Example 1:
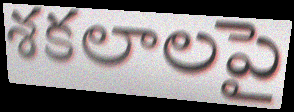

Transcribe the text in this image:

శకలాలపై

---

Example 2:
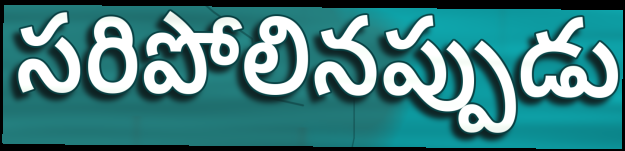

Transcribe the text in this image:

సరిపోలినప్పుడు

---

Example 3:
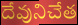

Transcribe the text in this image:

దేవునిచేత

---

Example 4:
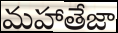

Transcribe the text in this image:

మహాతేజా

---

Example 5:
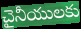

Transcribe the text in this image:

చైనీయులకు